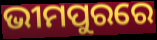
ଭୀମପୁରରେ